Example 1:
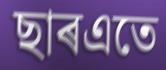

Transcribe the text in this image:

ছাৰএতে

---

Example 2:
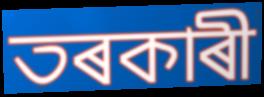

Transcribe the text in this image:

তৰকাৰী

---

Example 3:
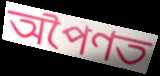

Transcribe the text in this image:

অপৈণত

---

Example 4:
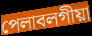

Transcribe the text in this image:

পেলাবলগীয়া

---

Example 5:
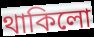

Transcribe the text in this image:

থাকিলো